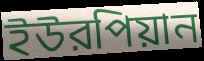
ইউরপিয়ান